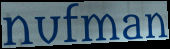
nufman